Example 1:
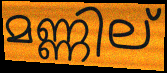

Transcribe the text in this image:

മണ്ണില്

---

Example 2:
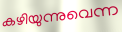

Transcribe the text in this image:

കഴിയുന്നുവെന്ന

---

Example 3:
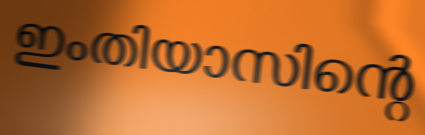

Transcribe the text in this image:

ഇംതിയാസിന്റെ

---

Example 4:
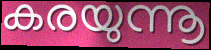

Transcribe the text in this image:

കരയുന്നൂ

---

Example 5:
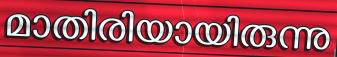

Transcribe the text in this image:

മാതിരിയായിരുന്നു